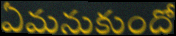
ఏమనుకుందో